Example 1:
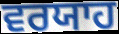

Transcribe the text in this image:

ਵਰਯਾਹ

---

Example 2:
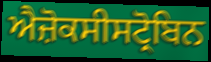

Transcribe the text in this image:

ਐਜ਼ੋਕਸੀਸਟ੍ਰੋਬਿਨ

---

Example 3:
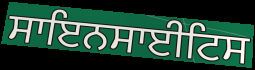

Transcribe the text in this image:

ਸਾਇਨਸਾਈਟਿਸ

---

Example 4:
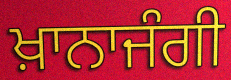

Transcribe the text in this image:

ਖ਼ਾਨਾਜੰਗੀ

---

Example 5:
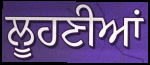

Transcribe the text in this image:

ਲੂਹਣੀਆਂ